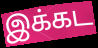
இக்கட